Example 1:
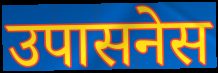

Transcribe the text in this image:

उपासनेस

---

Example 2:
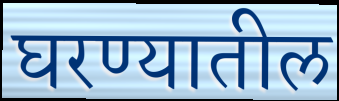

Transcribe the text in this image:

घरण्यातील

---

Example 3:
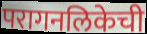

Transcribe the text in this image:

परागनलिकेची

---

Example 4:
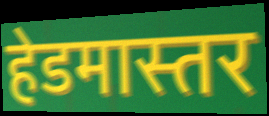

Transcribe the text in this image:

हेडमास्तर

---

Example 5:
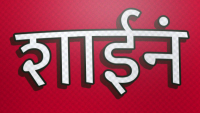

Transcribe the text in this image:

शाईनं